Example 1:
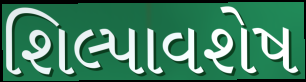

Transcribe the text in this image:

શિલ્પાવશેષ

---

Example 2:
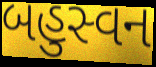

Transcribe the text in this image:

બહુસ્વન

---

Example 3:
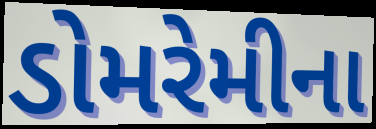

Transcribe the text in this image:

ડોમરેમીના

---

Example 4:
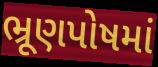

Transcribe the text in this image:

ભ્રૂણપોષમાં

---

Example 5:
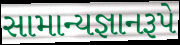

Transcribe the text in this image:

સામાન્યજ્ઞાનરૂપે